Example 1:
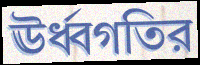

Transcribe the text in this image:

ঊর্ধ্বগতির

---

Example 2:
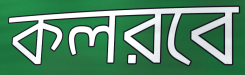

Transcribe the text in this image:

কলরবে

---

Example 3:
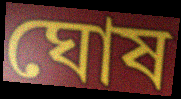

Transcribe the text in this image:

ঘোষ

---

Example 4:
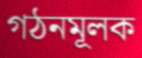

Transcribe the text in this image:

গঠনমূলক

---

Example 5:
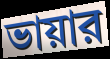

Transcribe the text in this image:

ভায়ার